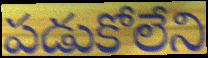
పడుకోలేని